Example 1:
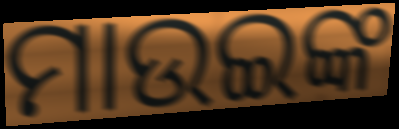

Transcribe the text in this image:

ମାଉଇଙ୍କ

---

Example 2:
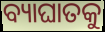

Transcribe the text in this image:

ବ୍ୟାଘାତକୁ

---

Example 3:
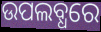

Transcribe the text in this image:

ଉପଲବ୍ଧରେ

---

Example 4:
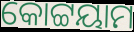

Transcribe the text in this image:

କୋଟ୍ଟୟାମ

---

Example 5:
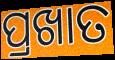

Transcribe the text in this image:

ପ୍ରଖାତ